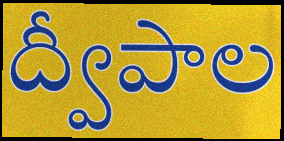
ద్వీపాల